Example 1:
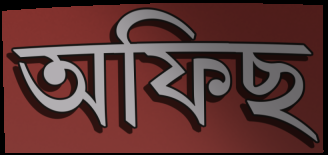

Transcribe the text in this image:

অফিছ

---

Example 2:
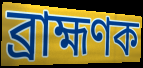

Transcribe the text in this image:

ব্ৰাহ্মণক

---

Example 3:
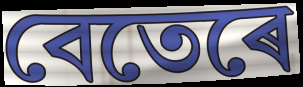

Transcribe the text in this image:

বেতেৰে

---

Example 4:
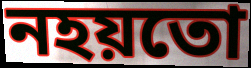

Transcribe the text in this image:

নহয়তো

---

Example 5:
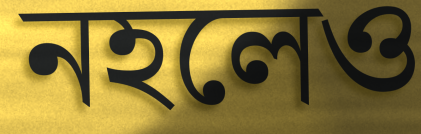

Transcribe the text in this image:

নহলেও